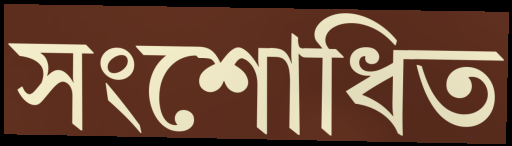
সংশোধিত